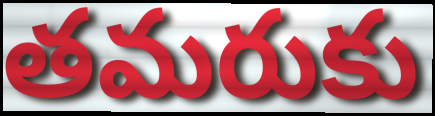
తమరుకు